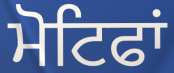
ਮੋਟਿਫਾਂ